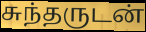
சுந்தருடன்